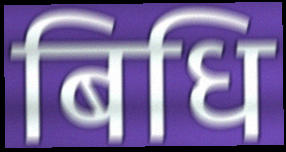
बिधि